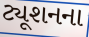
ટ્યૂશનના